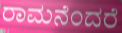
ರಾಮನೆಂದರೆ